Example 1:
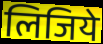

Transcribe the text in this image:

लिजिये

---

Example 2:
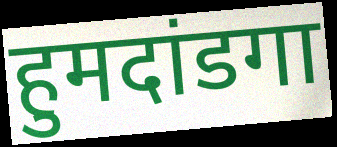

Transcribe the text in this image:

हुमदांडगा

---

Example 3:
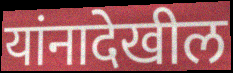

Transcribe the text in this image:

यांनादेखील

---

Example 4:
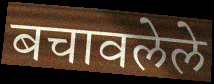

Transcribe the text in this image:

बचावलेले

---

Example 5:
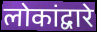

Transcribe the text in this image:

लोकांद्वारे